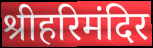
श्रीहरिमंदिर